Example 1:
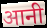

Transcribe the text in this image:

आनी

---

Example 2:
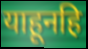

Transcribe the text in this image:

याहूनहि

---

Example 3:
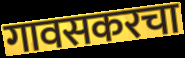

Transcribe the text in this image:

गावसकरचा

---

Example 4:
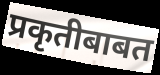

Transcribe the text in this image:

प्रकृतीबाबत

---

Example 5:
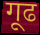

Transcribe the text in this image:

गूढ